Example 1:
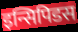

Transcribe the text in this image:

इन्सिपिडस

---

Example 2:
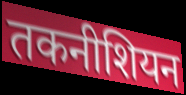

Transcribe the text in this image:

तकनीशियन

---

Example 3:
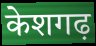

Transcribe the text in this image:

केशगढ़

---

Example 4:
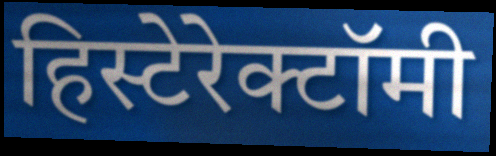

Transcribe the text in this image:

हिस्टेरेक्टॉमी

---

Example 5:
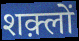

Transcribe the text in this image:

शक़्लों